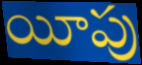
యీపు